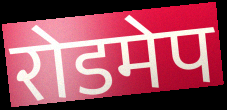
रोडमेप